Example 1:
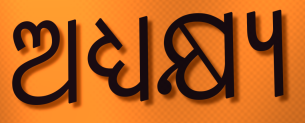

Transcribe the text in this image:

ଅଧ୍ୟକ୍ଷ୍ୟ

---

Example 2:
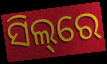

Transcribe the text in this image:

ସିଲ୍‌ରେ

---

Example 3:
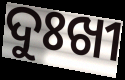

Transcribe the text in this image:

ଦୁଃଖୀ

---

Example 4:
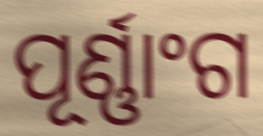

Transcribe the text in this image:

ପୂର୍ଣ୍ଣାଂଗ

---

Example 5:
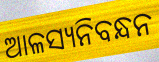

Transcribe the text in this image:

ଆଳସ୍ୟନିବନ୍ଧନ